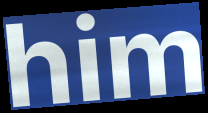
him